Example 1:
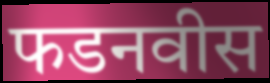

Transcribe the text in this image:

फडनवीस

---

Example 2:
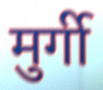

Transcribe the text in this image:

मुर्गी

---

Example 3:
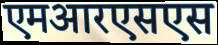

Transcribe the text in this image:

एमआरएसएस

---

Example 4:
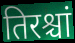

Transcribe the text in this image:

तिरश्चां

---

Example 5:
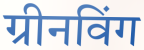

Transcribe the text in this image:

ग्रीनविंग